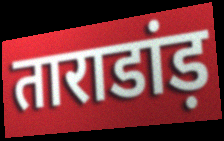
ताराडांड़